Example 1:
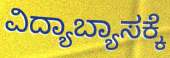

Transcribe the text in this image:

ವಿದ್ಯಾಬ್ಯಾಸಕ್ಕೆ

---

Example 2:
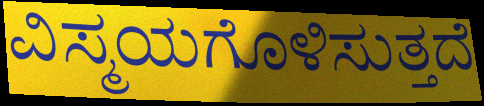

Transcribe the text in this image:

ವಿಸ್ಮಯಗೊಳಿಸುತ್ತದೆ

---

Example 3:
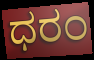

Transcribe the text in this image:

ಧರಂ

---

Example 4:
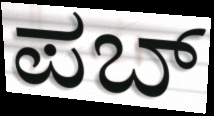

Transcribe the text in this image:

ಪಬ್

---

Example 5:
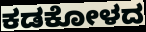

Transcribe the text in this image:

ಕಡಕೋಳದ